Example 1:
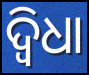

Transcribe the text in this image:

ଦ୍ବିଧା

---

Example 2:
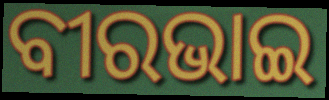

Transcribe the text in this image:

ବୀରଭାଇ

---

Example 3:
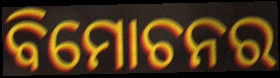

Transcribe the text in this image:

ବିମୋଚନର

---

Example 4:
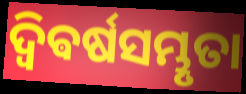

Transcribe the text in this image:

ଦ୍ଵିଵର୍ଷସମ୍ଭୃତା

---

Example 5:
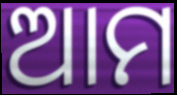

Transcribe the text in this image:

ଆମ